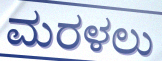
ಮರಳಲು